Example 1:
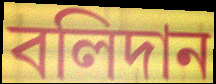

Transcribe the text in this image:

বলিদান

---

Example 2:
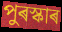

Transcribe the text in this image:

পুৰস্কাৰ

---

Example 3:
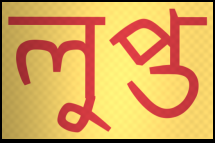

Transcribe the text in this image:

লুপ্ত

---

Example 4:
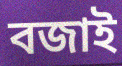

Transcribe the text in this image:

বজাই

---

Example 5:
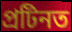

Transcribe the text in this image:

প্ৰটিনত